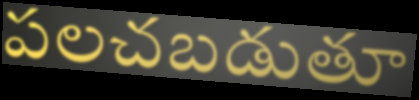
పలచబడుతూ